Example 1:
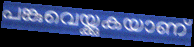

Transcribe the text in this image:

പങ്കുവെയ്ക്കുകയാണ്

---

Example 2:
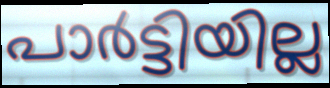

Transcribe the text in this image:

പാർട്ടിയില്ല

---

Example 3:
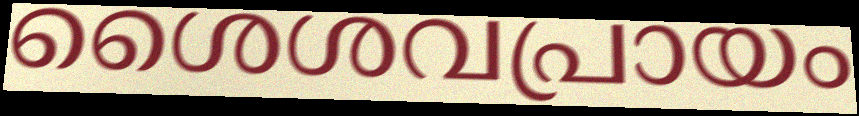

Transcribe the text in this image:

ശൈശവപ്രായം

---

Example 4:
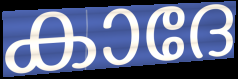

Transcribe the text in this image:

കാദേ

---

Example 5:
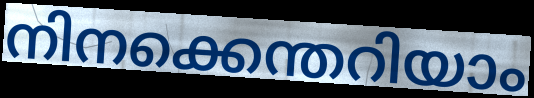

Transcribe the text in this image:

നിനക്കെന്തറിയാം